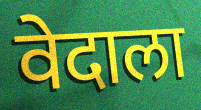
वेदाला